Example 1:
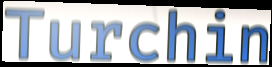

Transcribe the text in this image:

Turchin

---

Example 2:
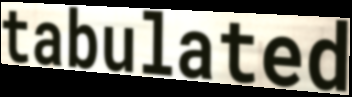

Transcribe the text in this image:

tabulated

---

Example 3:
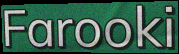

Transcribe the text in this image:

Farooki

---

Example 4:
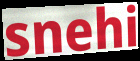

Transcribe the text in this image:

snehi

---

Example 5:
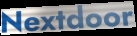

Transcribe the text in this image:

Nextdoor